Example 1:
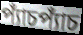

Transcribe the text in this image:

প্যাঁচপ্যাঁচ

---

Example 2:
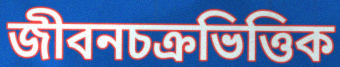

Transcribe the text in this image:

জীবনচক্রভিত্তিক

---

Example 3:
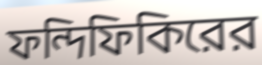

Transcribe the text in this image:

ফন্দিফিকিরের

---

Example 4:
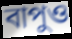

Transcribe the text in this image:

বাপুও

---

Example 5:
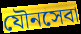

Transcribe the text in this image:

যৌনসেবা